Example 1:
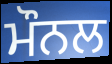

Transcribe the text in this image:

ਮੌਨਲ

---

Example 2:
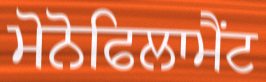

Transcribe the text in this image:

ਮੋਨੋਫਿਲਾਮੈਂਟ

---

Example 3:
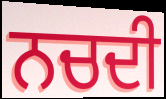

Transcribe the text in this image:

ਨਚਦੀ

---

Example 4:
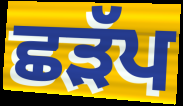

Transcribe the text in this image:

ਛੜੱਪ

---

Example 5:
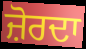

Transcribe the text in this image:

ਜ਼ੋਰਦਾ